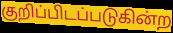
குறிப்பிடப்படுகின்ற